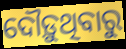
ଦୌଡ଼ୁଥିବାରୁ